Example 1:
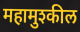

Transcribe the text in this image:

महामुश्कील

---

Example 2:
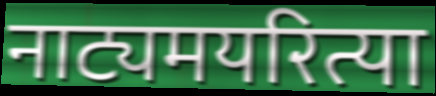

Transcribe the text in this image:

नाट्यमयरित्या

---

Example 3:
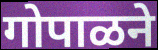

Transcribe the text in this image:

गोपाळने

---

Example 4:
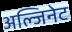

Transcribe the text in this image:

अल्जिनेट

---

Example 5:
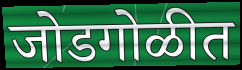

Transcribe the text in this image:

जोडगोळीत